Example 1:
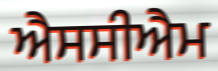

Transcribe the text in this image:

ਐਸਸੀਐਮ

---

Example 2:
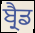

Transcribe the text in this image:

ਬ੍ਰੈਡ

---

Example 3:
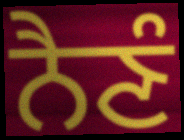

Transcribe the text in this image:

ਨੈਣੰ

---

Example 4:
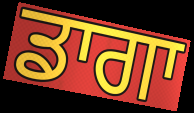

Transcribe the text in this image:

ਡਾਗਾ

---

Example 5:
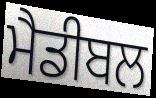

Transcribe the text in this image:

ਮੈਡੀਬਲ